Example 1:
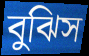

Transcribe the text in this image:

বুঝিস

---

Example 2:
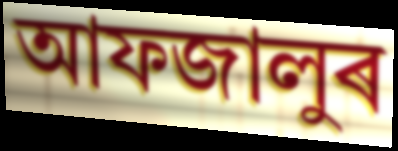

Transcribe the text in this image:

আফজালুৰ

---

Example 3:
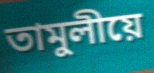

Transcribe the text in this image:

তামুলীয়ে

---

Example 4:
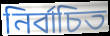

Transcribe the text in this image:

নিৰ্বাচিত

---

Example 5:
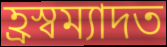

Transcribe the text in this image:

হ্ৰস্বম্যাদত